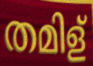
തമിള്